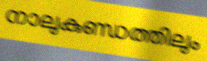
നാലുകുണ്ഡത്തിലും